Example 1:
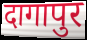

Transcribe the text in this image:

दागापुर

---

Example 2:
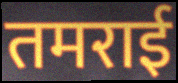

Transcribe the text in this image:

तमराई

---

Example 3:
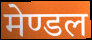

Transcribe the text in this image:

मेण्डल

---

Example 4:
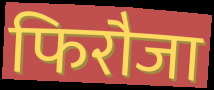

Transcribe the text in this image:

फिरौजा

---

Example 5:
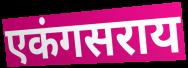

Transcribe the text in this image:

एकंगसराय